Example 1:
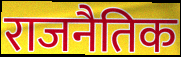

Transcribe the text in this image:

राजनैतिक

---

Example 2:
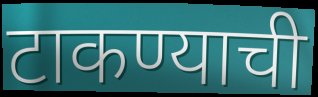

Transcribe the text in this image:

टाकण्याची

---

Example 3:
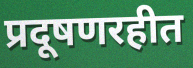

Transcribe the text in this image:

प्रदूषणरहीत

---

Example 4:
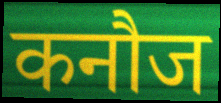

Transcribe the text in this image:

कनौज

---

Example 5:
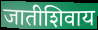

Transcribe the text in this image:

जातीशिवाय